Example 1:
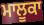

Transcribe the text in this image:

ਮਾਲੂਕਾ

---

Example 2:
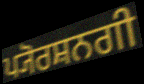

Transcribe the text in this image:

ਪ੍ਯੋਰਸ਼ਨਗੀ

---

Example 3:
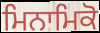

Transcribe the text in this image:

ਮਿਨਾਮਿਕੋ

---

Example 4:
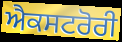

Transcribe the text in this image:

ਐਕਸਟਰੋਰੀ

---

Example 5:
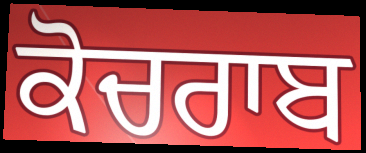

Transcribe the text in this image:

ਕੋਚਰਾਬ